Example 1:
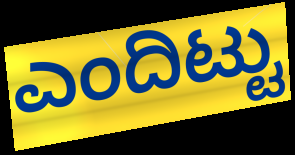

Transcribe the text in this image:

ಎಂದಿಟ್ಟು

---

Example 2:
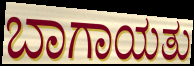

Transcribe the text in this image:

ಬಾಗಾಯತು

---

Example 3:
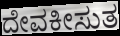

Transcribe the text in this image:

ದೇವಕೀಸುತ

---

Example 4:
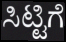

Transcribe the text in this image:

ಸಿಟ್ಟಿಗೆ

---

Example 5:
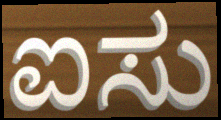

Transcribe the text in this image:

ಐಸು